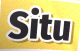
Situ